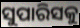
ସୁପାରିସକୁ